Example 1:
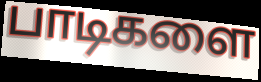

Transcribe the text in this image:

பாடிகளை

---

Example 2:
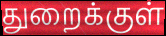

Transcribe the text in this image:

துறைக்குள்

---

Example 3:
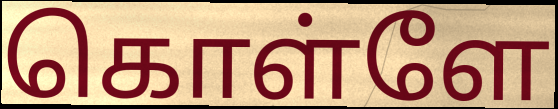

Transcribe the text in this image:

கொள்ளே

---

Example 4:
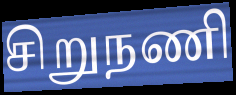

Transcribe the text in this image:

சிறுநணி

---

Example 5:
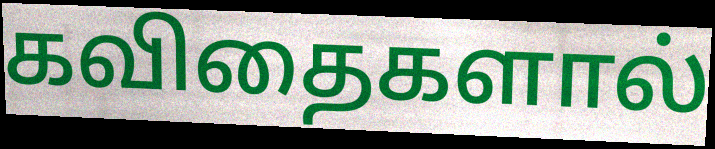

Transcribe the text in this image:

கவிதைகளால்